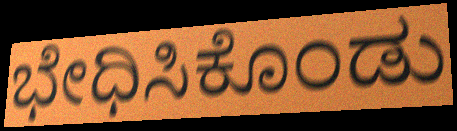
ಭೇಧಿಸಿಕೊಂಡು